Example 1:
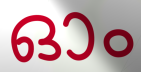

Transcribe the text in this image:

ഓം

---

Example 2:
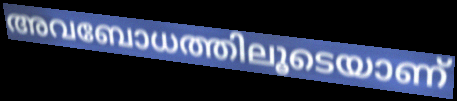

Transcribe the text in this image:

അവബോധത്തിലൂടെയാണ്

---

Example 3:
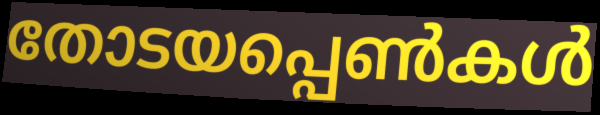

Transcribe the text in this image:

തോടയപ്പെൺകൾ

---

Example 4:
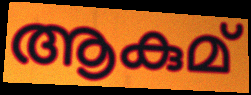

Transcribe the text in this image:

ആകുമ്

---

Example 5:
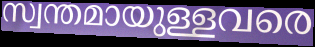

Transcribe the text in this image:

സ്വന്തമായുള്ളവരെ